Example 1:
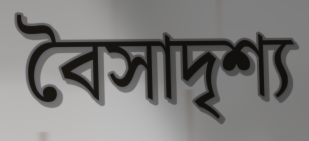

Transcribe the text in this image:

বৈসাদৃশ্য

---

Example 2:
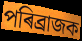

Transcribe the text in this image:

পৰিব্ৰাজক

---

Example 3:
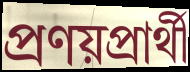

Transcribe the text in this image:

প্ৰণয়প্ৰাৰ্থী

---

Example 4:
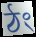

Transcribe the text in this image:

ঠং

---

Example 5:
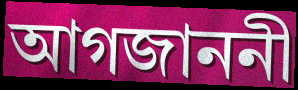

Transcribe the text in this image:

আগজাননী